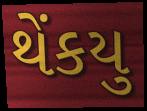
થેંકયુ